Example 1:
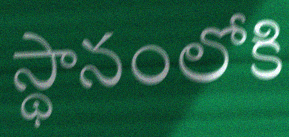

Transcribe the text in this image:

స్థానంలోకి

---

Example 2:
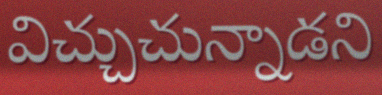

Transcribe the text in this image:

విచ్చుచున్నాడని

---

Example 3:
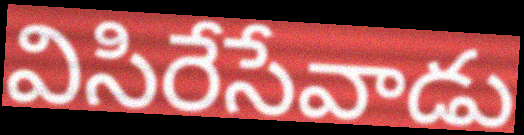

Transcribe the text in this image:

విసిరేసేవాడు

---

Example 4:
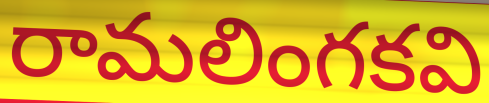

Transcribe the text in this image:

రామలింగకవి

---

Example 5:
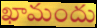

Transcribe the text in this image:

ఖామందు